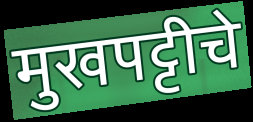
मुखपट्टीचे